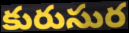
కురుసుర